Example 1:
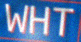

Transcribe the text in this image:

WHT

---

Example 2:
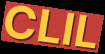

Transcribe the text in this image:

CLIL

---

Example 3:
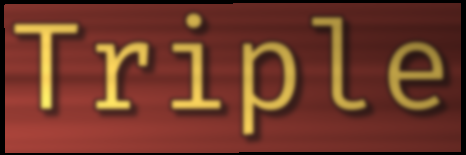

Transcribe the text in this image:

Triple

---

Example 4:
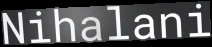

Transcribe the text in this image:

Nihalani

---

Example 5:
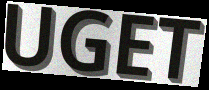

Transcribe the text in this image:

UGET